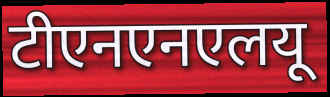
टीएनएनएलयू